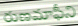
రుణమాఫీని